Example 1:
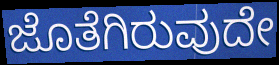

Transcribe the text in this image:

ಜೊತೆಗಿರುವುದೇ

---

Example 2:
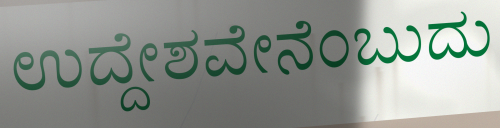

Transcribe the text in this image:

ಉದ್ದೇಶವೇನೆಂಬುದು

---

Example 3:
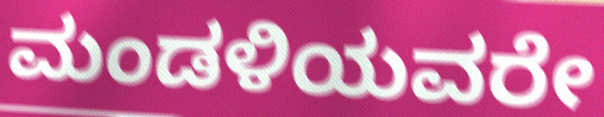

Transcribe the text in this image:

ಮಂಡಳಿಯವರೇ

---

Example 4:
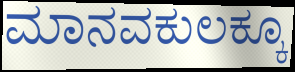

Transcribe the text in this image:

ಮಾನವಕುಲಕ್ಕೂ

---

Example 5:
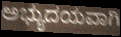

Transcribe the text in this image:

ಅಭ್ಯುದಯವಾಗಿ